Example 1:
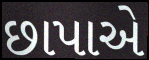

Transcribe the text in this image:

છાપાએ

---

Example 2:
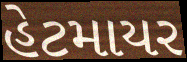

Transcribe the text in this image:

હેટમાયર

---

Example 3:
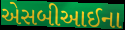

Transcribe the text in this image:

એસબીઆઈના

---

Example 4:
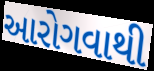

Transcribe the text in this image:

આરોગવાથી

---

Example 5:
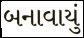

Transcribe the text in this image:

બનાવાયું